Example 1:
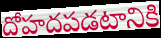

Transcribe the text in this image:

దోహదపడటానికి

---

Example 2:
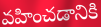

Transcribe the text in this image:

వహించడానికి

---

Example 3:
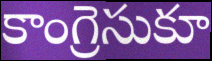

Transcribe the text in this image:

కాంగ్రెసుకూ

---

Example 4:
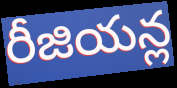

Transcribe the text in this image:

రీజియన్ల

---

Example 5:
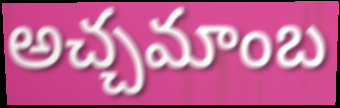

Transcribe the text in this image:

అచ్చమాంబ